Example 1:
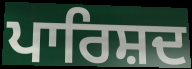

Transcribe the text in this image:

ਪਾਰਿਸ਼ਦ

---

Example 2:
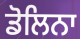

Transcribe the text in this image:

ਡੋਲਿਨਾ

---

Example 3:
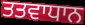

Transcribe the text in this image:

ਤਤਵਾਧਾਨ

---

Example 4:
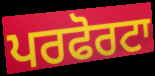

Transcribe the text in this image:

ਪਰਫੋਰਟਾ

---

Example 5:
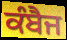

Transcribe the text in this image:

ਕੰਬੈਜ